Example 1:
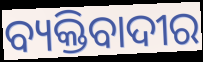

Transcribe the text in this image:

ବ୍ୟକ୍ତିବାଦୀର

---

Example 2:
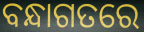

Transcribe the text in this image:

ବନ୍ଧାଗତରେ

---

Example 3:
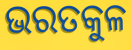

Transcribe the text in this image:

ଭରତକୁଳ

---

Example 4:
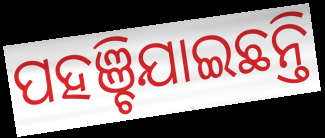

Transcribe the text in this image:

ପହଞ୍ଚିଯାଇଛନ୍ତି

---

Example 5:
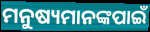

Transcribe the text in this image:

ମନୁଷ୍ୟମାନଙ୍କପାଇଁ